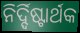
ନିର୍ଦ୍ଦିଷ୍ଟାର୍ଥକ